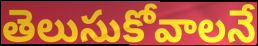
తెలుసుకోవాలనే